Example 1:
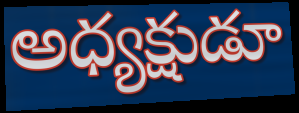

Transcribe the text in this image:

అధ్యక్షుడూ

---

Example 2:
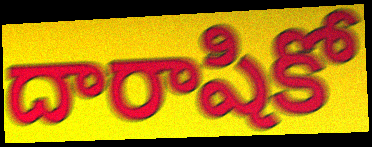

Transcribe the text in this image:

దారాషికో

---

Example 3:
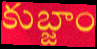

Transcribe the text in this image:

కుబ్జాం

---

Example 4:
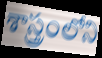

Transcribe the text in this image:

శాస్త్రంలోని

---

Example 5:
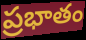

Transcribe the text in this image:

ప్రభాతం